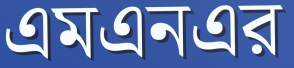
এমএনএর